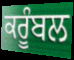
ਕਰੂੰਬਲ